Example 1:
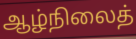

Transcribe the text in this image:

ஆழ்நிலைத்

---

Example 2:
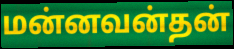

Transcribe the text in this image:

மன்னவன்தன்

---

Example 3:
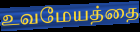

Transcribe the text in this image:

உவமேயத்தை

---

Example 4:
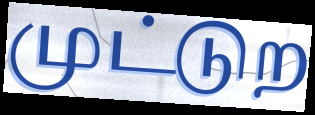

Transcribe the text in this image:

முட்டுற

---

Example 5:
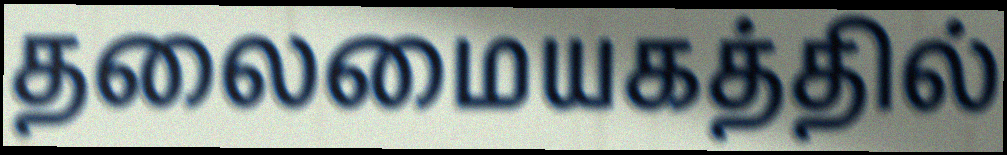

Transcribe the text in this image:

தலைமையகத்தில்